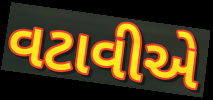
વટાવીએ